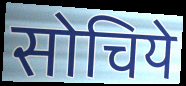
सोचिये